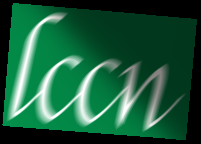
lccn